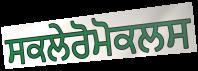
ਸਕਲੇਰੋਮੋਕਲਸ